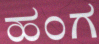
ಹಂಗ